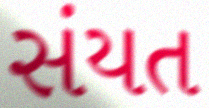
સંયત